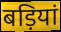
बड़ियां